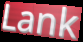
Lank